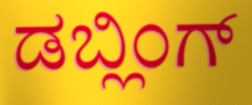
ಡಬ್ಲಿಂಗ್